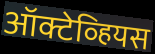
ऑक्टेव्हियस